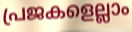
പ്രജകളെല്ലാം